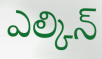
ఎల్కిన్